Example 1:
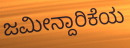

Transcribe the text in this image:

ಜಮೀನ್ದಾರಿಕೆಯ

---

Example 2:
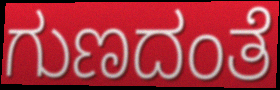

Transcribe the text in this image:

ಗುಣದಂತೆ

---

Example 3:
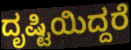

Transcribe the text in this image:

ದೃಷ್ಟಿಯಿದ್ದರೆ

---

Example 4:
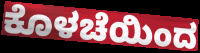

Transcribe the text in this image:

ಕೊಳಚೆಯಿಂದ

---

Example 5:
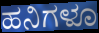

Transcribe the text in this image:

ಹನಿಗಳೂ